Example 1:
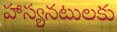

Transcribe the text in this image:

హాస్యనటులకు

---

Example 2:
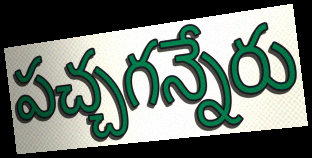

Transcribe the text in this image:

పచ్చగన్నేరు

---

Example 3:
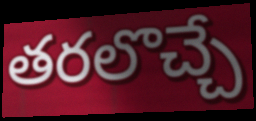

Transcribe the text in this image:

తరలొచ్చే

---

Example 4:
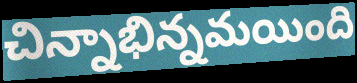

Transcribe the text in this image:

చిన్నాభిన్నమయింది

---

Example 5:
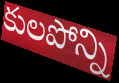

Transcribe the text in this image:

కులపోన్ని